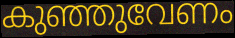
കുഞ്ഞുവേണം